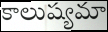
కాలుష్యమా